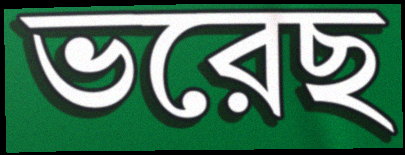
ভরেছ